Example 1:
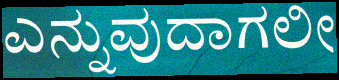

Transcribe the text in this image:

ಎನ್ನುವುದಾಗಲೀ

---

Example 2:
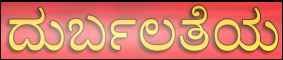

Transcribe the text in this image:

ದುರ್ಬಲತೆಯ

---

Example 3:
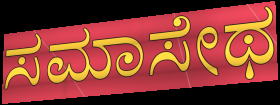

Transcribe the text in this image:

ಸಮಾಸೇಥ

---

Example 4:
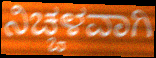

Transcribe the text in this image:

ನಿಚ್ಚಳವಾಗಿ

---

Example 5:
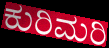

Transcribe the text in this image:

ಕುರಿಮರಿ